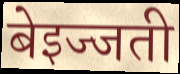
बेइज्‍जती